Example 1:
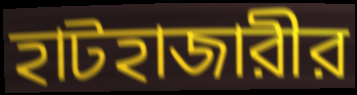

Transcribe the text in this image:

হাটহাজারীর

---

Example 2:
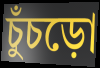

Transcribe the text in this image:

চুঁচড়ো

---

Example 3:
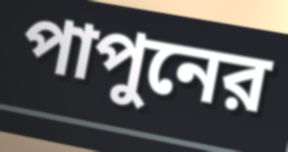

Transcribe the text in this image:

পাপুনের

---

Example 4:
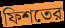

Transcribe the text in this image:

ফিশতের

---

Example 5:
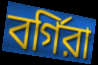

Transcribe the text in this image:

বর্গিরা